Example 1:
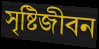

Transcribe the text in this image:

সৃষ্টিজীবন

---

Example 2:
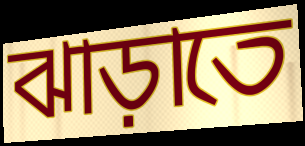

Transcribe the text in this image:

ঝাড়াতে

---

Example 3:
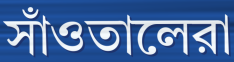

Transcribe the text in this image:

সাঁওতালেরা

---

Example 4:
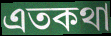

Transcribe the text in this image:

এতকথা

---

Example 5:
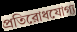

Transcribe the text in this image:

প্রতিরোধযোগ্য